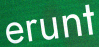
erunt